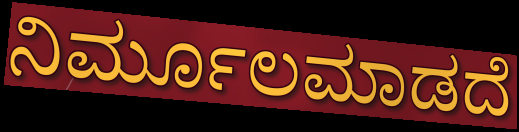
ನಿರ್ಮೂಲಮಾಡದೆ